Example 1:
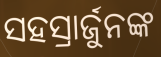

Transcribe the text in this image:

ସହସ୍ରାର୍ଜୁନଙ୍କ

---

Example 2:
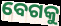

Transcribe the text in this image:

ବେଗକୁ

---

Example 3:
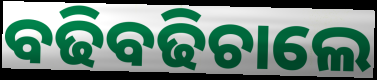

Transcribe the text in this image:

ବଢିବଢିଚାଲେ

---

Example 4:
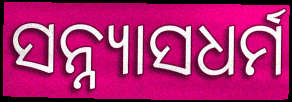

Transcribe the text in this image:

ସନ୍ନ୍ୟାସଧର୍ମ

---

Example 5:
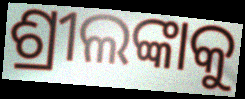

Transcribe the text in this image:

ଶ୍ରୀଲଙ୍କାକୁ